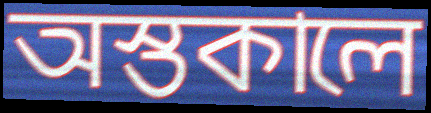
অস্তকালে